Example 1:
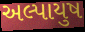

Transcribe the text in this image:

અલ્પાયુષ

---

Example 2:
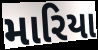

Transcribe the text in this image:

મારિયા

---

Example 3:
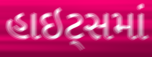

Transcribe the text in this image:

હાઇટ્સમાં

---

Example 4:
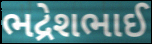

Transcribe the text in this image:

ભદ્રેશભાઈ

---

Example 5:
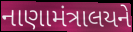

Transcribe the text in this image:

નાણામંત્રાલયને